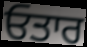
ਓਤਾਰ